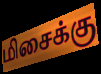
மிசைக்கு